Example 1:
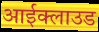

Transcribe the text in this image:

आईक्लाउड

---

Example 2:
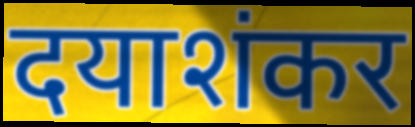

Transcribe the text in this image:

दयाशंकर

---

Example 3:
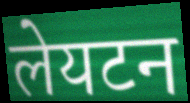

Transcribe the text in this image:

लेयटन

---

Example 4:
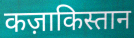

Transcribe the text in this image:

कज़ाकिस्तान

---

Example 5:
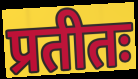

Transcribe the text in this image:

प्रतीतः